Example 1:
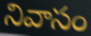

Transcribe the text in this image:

నివాసం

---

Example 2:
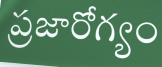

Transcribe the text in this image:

ప్రజారోగ్యం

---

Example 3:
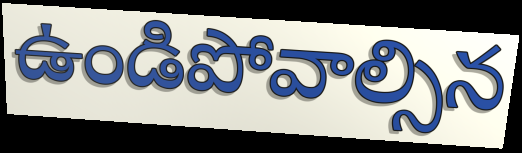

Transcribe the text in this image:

ఉండిపోవాల్సిన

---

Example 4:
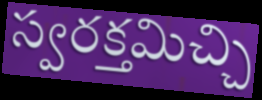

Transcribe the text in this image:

స్వరక్తమిచ్చి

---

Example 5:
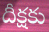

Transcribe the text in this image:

దీక్షకు